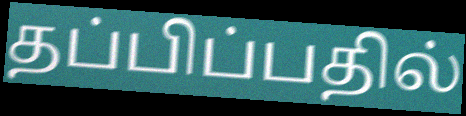
தப்பிப்பதில்